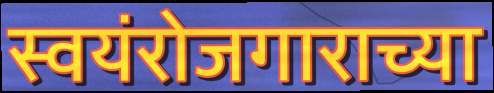
स्वयंरोजगाराच्या